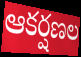
ఆకర్షణల